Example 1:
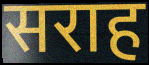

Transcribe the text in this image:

सराह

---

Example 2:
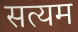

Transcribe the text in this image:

सत्यम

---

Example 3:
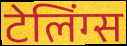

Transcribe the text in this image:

टेलिंग्स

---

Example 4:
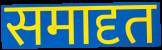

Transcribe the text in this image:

समादृत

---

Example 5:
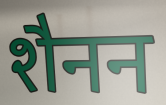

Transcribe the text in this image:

शैनन